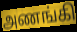
அணங்கி